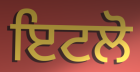
ਇਟਲੋ